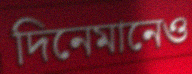
দিনেমানেও